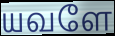
யவளே